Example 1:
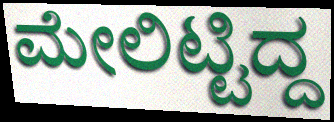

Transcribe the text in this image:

ಮೇಲಿಟ್ಟಿದ್ದ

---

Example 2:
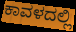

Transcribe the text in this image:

ಕಾವಳದಲ್ಲಿ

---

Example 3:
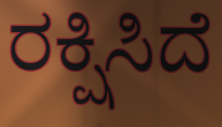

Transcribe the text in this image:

ರಕ್ಷಿಸಿದೆ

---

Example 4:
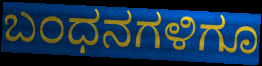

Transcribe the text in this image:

ಬಂಧನಗಳಿಗೂ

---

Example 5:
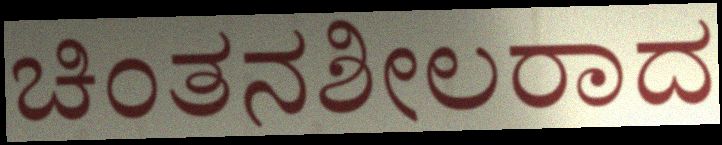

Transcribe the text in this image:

ಚಿಂತನಶೀಲರಾದ